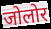
जोलोर